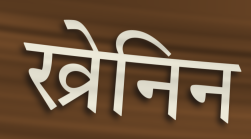
ख्रेनिन